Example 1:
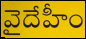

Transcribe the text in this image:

వైదేహీం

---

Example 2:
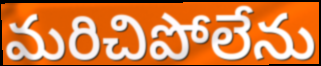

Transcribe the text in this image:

మరిచిపోలేను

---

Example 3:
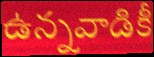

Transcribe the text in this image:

ఉన్నవాడికీ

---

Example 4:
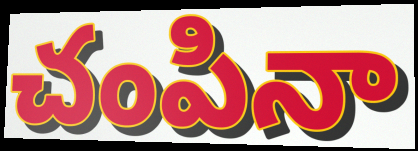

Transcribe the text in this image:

చంపినా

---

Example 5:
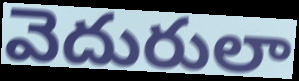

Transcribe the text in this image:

వెదురులా